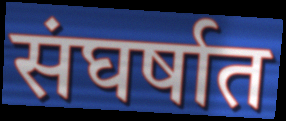
संघर्षात